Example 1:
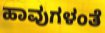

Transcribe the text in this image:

ಹಾವುಗಳಂತೆ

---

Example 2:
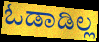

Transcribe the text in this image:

ಓಡಾಡಿಲ್ಲ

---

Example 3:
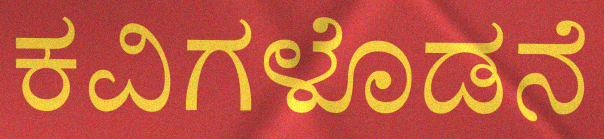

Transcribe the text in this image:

ಕವಿಗಳೊಡನೆ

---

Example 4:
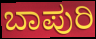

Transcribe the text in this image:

ಬಾಪುರಿ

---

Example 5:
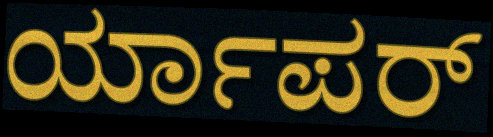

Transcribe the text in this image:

ರ್ಯಾಪರ್